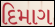
દિમાગ